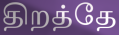
திறத்தே